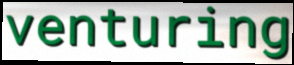
venturing